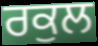
ਰਕੁਲ